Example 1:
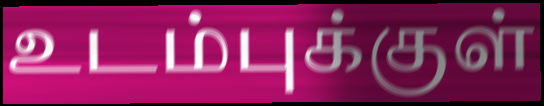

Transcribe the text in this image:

உடம்புக்குள்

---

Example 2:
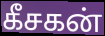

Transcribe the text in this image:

கீசகன்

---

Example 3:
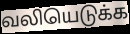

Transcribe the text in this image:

வலியெடுக்க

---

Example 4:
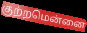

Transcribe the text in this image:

குற்றமென்னை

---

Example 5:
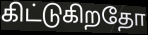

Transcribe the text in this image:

கிட்டுகிறதோ